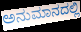
ಅನುಮಾನದಲ್ಲಿ